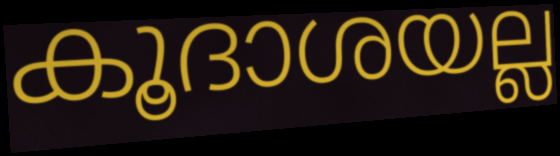
കൂദാശയല്ല